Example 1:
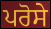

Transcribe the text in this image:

ਪਰੋਸੇ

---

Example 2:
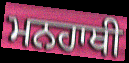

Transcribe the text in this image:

ਮਨਹਾਥੀ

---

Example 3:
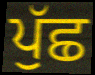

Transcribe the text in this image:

ਪੁੱਛ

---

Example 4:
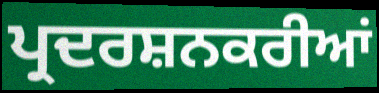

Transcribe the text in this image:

ਪ੍ਰਦਰਸ਼ਨਕਰੀਆਂ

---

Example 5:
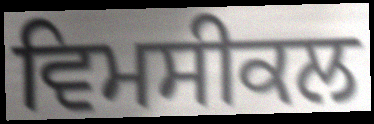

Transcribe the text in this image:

ਵਿਮਸੀਕਲ